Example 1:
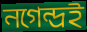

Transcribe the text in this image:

নগেন্দ্রই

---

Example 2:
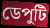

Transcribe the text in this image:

ডেপুটি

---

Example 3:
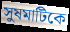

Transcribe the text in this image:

সুষমাটিকে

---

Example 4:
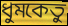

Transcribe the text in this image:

ধুমকেতু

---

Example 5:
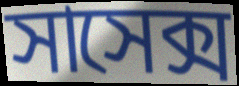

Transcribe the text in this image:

সাসেক্স